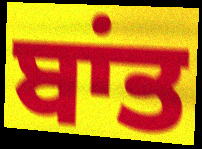
ਬਾਂਤ